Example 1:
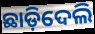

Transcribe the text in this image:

ଛାଡ଼ିଦେଲି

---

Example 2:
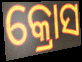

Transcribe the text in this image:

କ୍ରୋସ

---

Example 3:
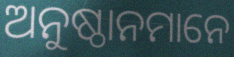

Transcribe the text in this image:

ଅନୁଷ୍ଠାନମାନେ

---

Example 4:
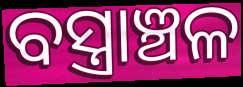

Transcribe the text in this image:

ବସ୍ତ୍ରାଞ୍ଚଳ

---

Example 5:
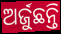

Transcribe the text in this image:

ଅର୍ଜୁଛନ୍ତି